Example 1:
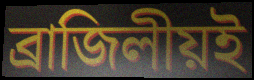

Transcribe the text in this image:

ব্রাজিলীয়ই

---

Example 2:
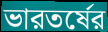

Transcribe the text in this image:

ভারতর্ষের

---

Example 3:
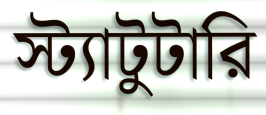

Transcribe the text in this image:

স্ট্যাটুটারি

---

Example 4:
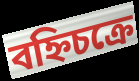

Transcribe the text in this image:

বহ্নিচক্রে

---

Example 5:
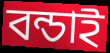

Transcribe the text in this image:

বন্ডাই